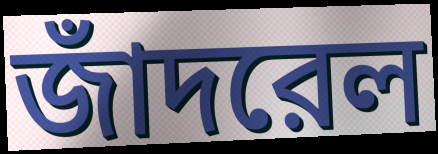
জাঁদরেল